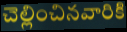
చెల్లించినవారికి